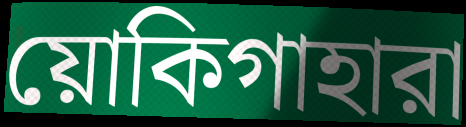
য়োকিগাহারা